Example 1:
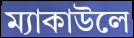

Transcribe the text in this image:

ম্যাকাউলে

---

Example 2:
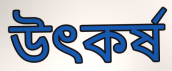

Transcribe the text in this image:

উৎকর্ষ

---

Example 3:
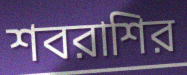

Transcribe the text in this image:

শবরাশির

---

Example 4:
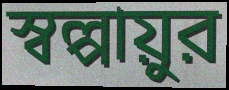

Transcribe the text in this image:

স্বল্পায়ুর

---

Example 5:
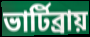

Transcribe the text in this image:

ভার্টিব্রায়